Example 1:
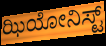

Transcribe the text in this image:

ಝಿಯೋನಿಸ್ಟ್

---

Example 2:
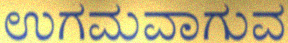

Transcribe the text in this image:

ಉಗಮವಾಗುವ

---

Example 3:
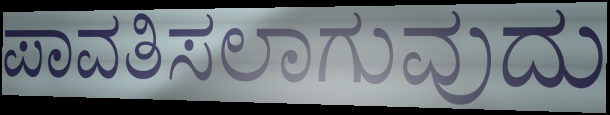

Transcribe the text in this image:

ಪಾವತಿಸಲಾಗುವುದು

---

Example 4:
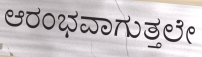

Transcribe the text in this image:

ಆರಂಭವಾಗುತ್ತಲೇ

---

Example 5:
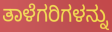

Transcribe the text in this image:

ತಾಳೆಗರಿಗಳನ್ನು